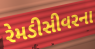
રેમડીસીવરના